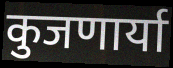
कुजणार्या